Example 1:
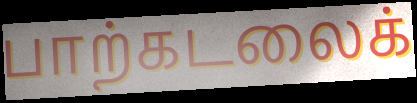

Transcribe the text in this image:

பாற்கடலைக்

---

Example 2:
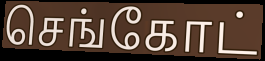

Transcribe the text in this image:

செங்கோட்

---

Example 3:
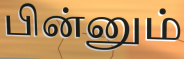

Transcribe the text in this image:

பின்னும்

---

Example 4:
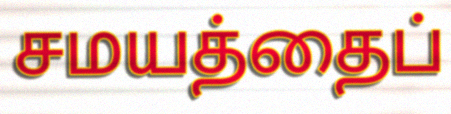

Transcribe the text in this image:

சமயத்தைப்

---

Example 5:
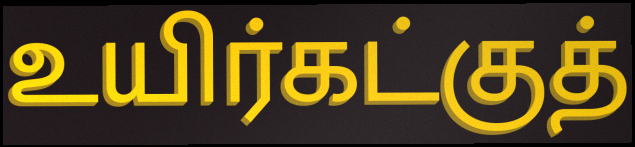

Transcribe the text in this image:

உயிர்கட்குத்